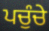
ਪਚੁੰਚੇ